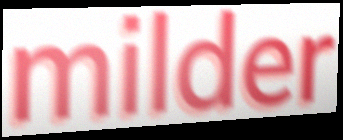
milder